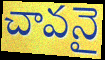
చావనై